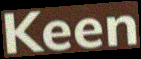
Keen